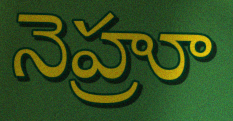
నెహ్రూ